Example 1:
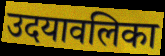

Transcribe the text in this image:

उदयावलिका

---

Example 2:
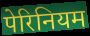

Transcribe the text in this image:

पेरिनियम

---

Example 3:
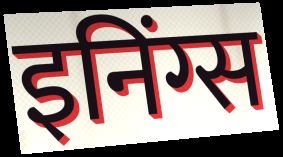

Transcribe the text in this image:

इनिंग्स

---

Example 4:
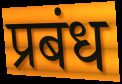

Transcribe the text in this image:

प्रबंध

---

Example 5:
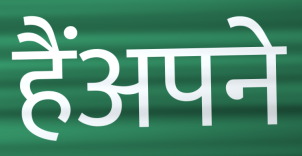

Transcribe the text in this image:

हैंअपने